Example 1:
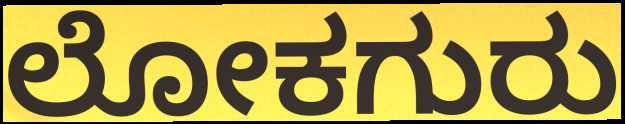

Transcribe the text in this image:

ಲೋಕಗುರು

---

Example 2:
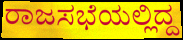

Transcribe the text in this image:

ರಾಜಸಭೆಯಲ್ಲಿದ್ದ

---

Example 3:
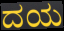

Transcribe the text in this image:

ದಯ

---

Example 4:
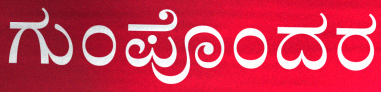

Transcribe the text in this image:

ಗುಂಪೊಂದರ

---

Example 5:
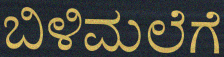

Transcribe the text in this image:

ಬಿಳಿಮಲೆಗೆ